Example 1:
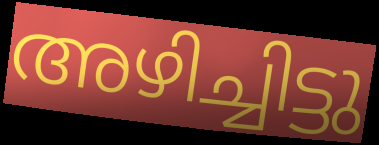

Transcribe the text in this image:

അഴിച്ചിട്ടു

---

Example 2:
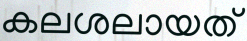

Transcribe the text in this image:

കലശലായത്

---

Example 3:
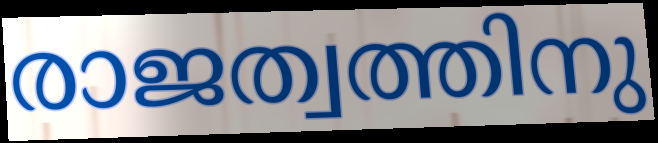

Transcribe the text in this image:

രാജത്വത്തിനു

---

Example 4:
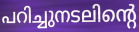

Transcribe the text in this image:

പറിച്ചുനടലിന്റെ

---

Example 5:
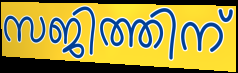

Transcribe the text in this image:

സജിത്തിന്